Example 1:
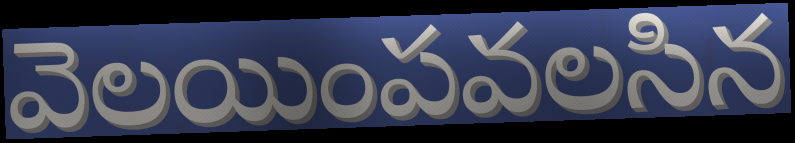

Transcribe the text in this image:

వెలయింపవలసిన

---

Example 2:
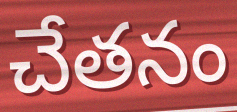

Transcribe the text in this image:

చేతనం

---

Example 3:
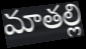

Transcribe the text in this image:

మాతల్లి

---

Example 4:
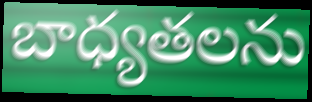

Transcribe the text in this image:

బాధ్యతలను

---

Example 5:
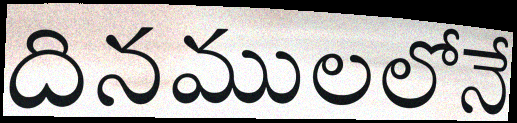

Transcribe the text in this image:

దినములలోనే